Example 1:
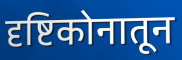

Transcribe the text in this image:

दृष्टिकोनातून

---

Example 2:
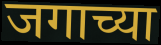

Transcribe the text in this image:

जगाच्या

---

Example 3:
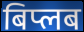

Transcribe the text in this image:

बिप्लब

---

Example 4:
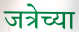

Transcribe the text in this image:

जत्रेच्या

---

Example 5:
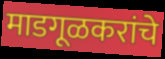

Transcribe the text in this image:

माडगूळकरांचे